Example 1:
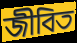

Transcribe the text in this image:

জীবিত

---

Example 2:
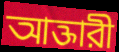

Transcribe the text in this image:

আক্তারী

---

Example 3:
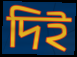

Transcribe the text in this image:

দিই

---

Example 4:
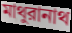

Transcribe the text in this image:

মাথুরানাথ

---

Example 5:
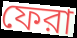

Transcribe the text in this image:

ফেরা